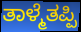
ತಾಳ್ಮೆತಪ್ಪಿ